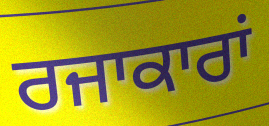
ਰਜਾਕਾਰਾਂ